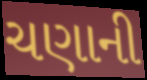
ચણાની